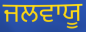
ਜਲਵਾਯੂ